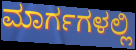
ಮಾರ್ಗಗಳಲ್ಲಿ